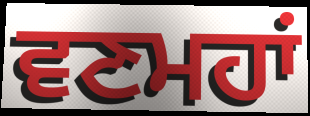
ਵਣਮਹਾਂ